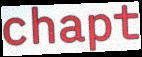
chapt